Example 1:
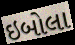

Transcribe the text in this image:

ઇબોલા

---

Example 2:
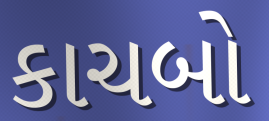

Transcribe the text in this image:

કાચબો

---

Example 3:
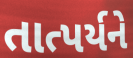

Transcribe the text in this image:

તાત્પર્યને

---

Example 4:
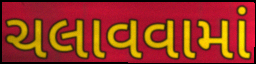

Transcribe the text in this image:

ચલાવવામાં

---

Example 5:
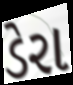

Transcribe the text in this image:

ડેરા